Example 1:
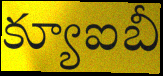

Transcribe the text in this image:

క్యూఐబీ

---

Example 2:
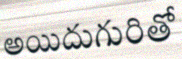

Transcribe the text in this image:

అయిదుగురితో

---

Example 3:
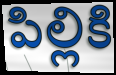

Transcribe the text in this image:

పిల్లికి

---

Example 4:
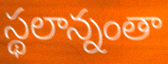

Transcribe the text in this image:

స్థలాన్నంతా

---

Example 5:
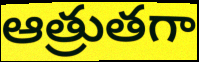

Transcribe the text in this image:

ఆత్రుతగా